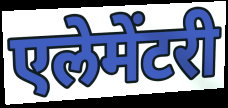
एलेमेंटरी